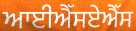
ਆਈਐੱਸਏਐੱਸ